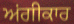
ਅਂਗੀਕਾਰ